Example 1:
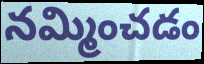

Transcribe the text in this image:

నమ్మించడం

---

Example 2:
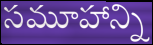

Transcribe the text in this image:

సమూహాన్ని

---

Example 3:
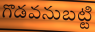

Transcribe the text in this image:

గొడవనుబట్టి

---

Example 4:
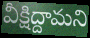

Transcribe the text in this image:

వీక్షిద్దామని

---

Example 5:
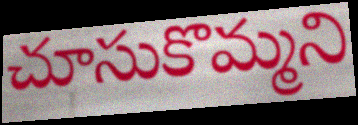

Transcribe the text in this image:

చూసుకొమ్మని